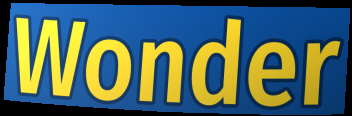
Wonder